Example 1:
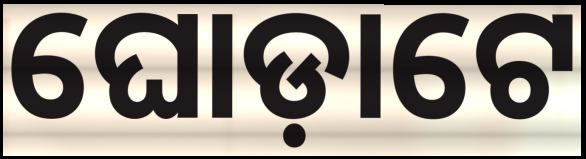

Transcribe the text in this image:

ଘୋଡ଼ାଟେ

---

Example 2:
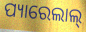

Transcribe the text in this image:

ପ୍ୟାରେଲାଲ୍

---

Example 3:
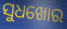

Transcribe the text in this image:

ସୁଧଖୋର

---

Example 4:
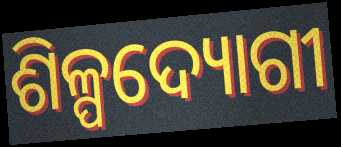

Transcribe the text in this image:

ଶିଳ୍ପଦ୍ୟୋଗୀ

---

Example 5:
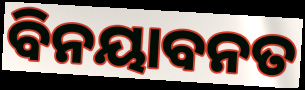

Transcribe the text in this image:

ବିନୟାବନତ